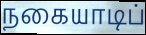
நகையாடிப்